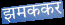
झमककर